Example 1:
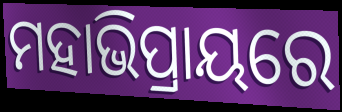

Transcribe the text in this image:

ମହାଭିପ୍ରାୟରେ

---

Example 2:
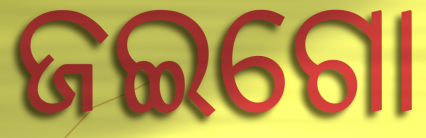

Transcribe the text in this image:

ଜଇଗୋ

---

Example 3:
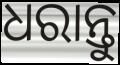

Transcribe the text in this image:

ଧରାନ୍ତୁ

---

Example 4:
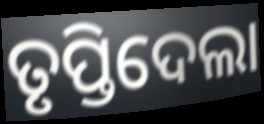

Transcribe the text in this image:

ତୃପ୍ତିଦେଲା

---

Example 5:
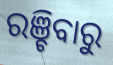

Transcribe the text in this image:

ରଞ୍ଚିବାରୁ